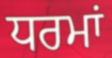
ਧਰਮਾਂ